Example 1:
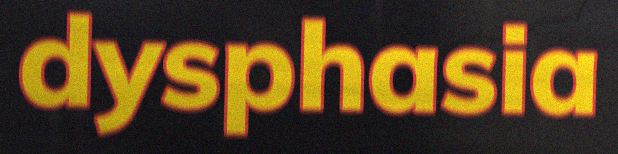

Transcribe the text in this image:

dysphasia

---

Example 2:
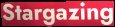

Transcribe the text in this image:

Stargazing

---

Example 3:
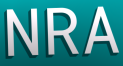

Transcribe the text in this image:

NRA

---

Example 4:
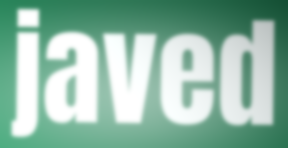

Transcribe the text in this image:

javed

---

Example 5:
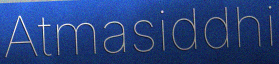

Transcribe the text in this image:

Atmasiddhi